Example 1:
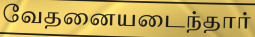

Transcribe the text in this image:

வேதனையடைந்தார்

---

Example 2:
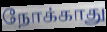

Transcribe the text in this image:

நோக்காது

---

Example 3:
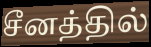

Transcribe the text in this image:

சீனத்தில்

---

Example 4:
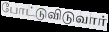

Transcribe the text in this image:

போட்டுவிடுவார்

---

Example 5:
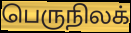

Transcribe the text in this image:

பெருநிலக்